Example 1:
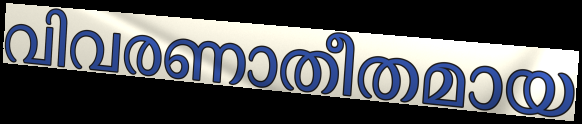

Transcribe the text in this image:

വിവരണാതീതമായ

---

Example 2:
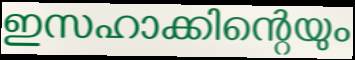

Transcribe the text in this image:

ഇസഹാക്കിന്റെയും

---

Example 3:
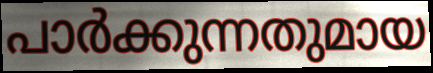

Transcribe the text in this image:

പാർക്കുന്നതുമായ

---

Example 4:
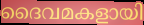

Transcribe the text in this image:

ദൈവമകളായി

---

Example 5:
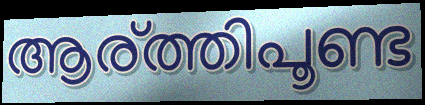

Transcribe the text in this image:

ആര്ത്തിപൂണ്ട